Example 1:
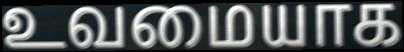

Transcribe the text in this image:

உவமையாக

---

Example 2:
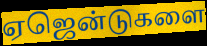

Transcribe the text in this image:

ஏஜென்டுகளை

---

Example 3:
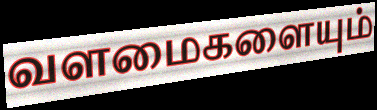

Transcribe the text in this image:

வளமைகளையும்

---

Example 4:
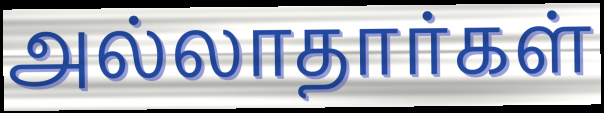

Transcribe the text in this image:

அல்லாதார்கள்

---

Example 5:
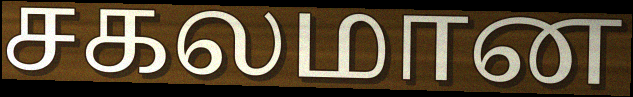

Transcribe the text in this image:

சகலமான